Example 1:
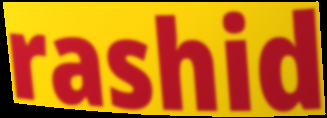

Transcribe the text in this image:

rashid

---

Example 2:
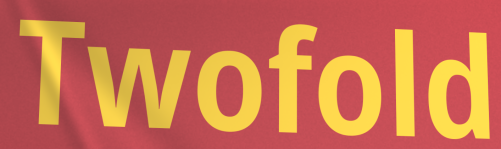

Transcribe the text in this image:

Twofold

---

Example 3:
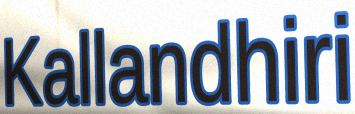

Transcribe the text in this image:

Kallandhiri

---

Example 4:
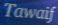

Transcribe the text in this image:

Tawaif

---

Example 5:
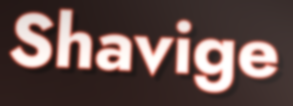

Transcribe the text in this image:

Shavige